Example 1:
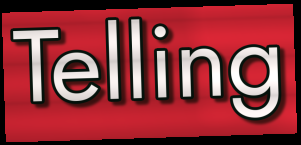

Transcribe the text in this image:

Telling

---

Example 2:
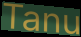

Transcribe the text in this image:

Tanu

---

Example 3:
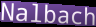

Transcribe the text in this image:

Nalbach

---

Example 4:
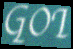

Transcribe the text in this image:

GOI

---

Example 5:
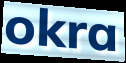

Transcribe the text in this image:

okra